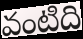
వంటిది